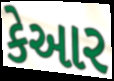
કેઆર